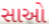
સાઓ